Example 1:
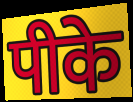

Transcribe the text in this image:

पीके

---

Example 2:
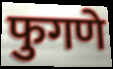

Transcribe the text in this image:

फुगणे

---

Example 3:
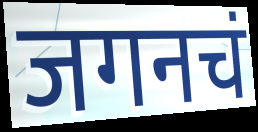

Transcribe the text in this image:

जगनचं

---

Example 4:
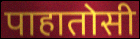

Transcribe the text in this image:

पाहातोसी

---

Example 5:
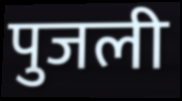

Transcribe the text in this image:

पुजली